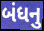
બંધનુ